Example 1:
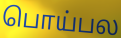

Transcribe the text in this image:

பொய்பல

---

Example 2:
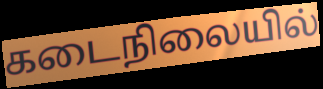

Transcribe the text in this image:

கடைநிலையில்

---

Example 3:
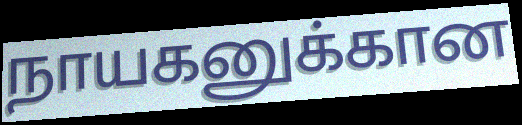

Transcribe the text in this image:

நாயகனுக்கான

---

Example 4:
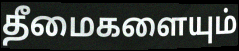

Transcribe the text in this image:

தீமைகளையும்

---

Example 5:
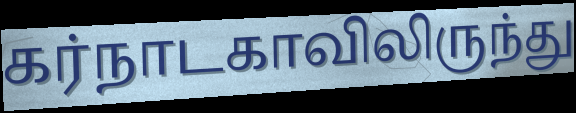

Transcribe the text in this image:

கர்நாடகாவிலிருந்து